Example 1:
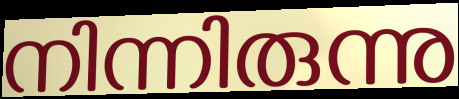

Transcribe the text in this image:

നിന്നിരുന്നു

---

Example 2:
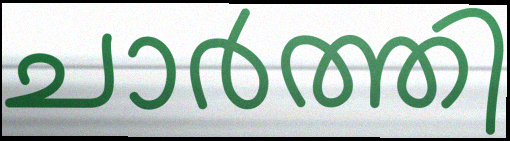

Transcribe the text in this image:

ചാർത്തി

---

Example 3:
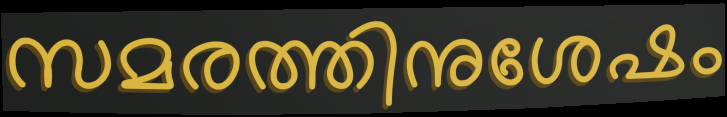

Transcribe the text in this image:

സമരത്തിനുശേഷം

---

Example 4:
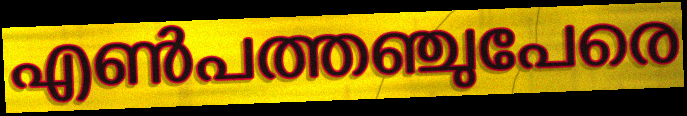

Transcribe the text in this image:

എൺപത്തഞ്ചുപേരെ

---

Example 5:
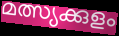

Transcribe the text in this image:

മത്സ്യക്കുളം